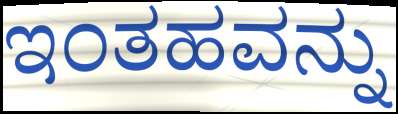
ಇಂತಹವನ್ನು